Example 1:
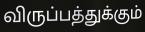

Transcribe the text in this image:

விருப்பத்துக்கும்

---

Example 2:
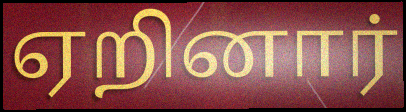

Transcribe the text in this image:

ஏறினார்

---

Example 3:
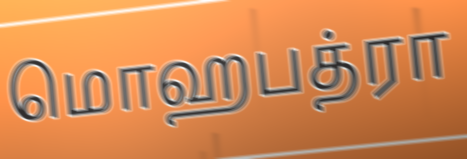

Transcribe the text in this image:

மொஹபத்ரா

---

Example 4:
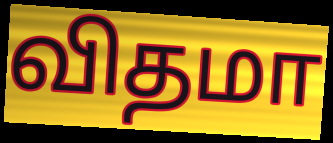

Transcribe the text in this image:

விதமா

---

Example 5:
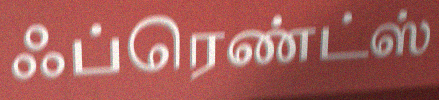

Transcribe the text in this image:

ஃப்ரெண்ட்ஸ்